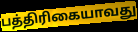
பத்திரிகையாவது